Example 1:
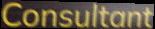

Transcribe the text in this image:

Consultant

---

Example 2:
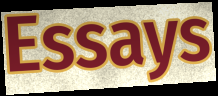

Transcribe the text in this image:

Essays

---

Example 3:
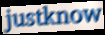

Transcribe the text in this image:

justknow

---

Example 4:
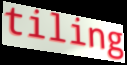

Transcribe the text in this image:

tiling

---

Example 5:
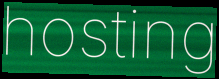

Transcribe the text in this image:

hosting